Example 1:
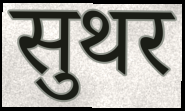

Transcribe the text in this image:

सुथर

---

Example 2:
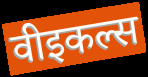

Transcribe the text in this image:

वीइकल्स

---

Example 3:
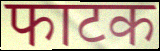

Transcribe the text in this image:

फाटक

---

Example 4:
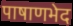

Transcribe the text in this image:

पाषाणभेद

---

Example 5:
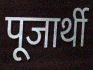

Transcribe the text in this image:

पूजार्थी